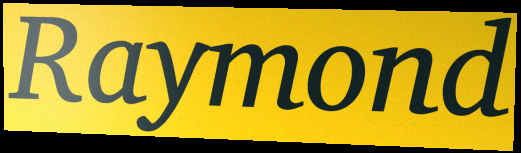
Raymond